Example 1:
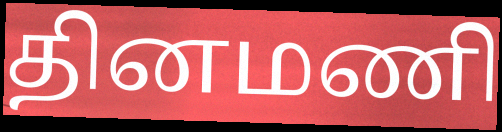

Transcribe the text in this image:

தினமணி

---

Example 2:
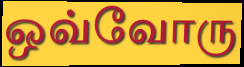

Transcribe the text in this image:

ஒவ்வோரு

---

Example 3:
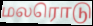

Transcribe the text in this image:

மலரொடு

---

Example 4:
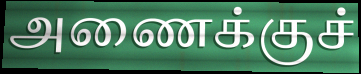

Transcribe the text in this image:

அணைக்குச்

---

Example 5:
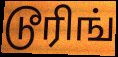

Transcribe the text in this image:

டூரிங்